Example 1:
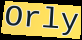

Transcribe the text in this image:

Orly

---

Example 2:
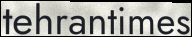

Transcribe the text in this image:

tehrantimes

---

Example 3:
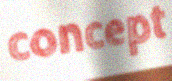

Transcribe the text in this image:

concept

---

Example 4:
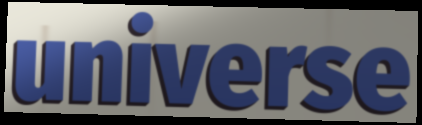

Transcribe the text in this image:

universe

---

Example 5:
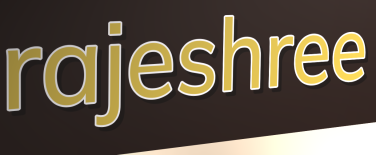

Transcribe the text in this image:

rajeshree